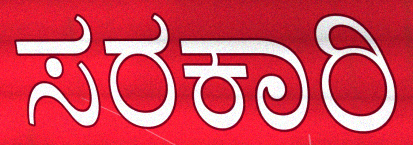
ಸರಕಾರಿ